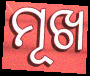
ମୂଖ